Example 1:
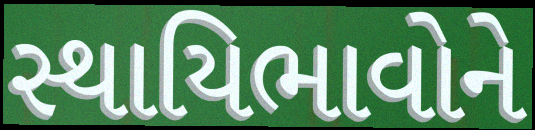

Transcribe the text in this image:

સ્થાયિભાવોને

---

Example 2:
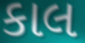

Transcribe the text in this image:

કાલ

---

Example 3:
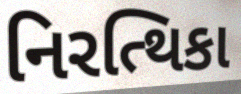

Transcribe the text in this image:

નિરત્થિકા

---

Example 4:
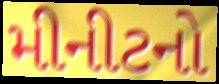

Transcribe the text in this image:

મીનીટનો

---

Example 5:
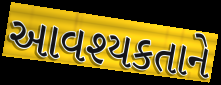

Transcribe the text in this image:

આવશ્યકતાને